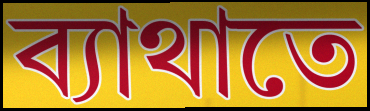
ব্যাথাতে